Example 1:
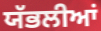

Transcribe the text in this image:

ਯੱਭਲੀਆਂ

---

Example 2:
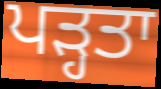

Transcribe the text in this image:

ਪੜ੍ਹਤਾ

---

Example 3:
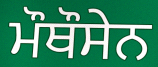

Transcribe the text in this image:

ਮੌਥੌਸੇਨ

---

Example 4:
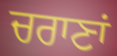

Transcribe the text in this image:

ਚਰਾਣਾਂ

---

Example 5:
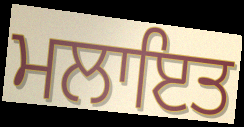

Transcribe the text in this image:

ਮਲਾਇਤ